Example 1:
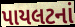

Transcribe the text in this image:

પાયલટનાં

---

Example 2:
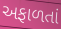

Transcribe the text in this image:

અફાળતાં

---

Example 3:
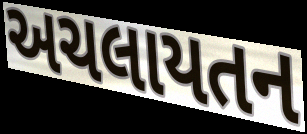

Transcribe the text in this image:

અચલાયતન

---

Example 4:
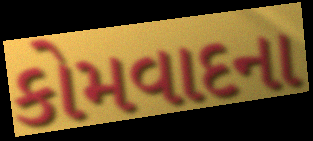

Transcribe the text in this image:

કોમવાદના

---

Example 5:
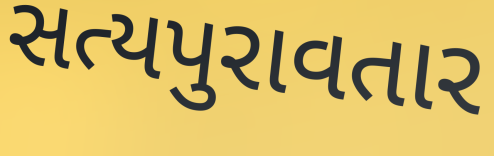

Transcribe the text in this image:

સત્યપુરાવતાર